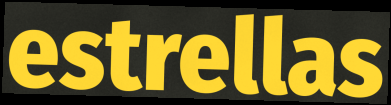
estrellas